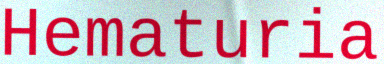
Hematuria